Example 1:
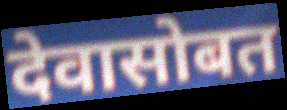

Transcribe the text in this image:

देवासोबत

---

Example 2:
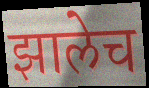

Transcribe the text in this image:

झालेच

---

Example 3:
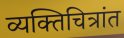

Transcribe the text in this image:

व्यक्तिचित्रांत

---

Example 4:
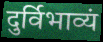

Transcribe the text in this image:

दुर्विभाव्यं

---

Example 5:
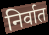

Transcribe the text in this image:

निर्वात